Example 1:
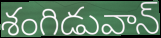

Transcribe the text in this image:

శంగిడువాన్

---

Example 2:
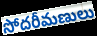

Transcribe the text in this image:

సోదరీమణులు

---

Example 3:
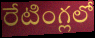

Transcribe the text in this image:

రేటింగ్లలో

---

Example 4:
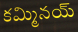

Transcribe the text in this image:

కమ్మినయ్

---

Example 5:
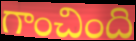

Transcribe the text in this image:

గాంచింది